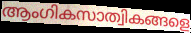
ആംഗികസാത്വികങ്ങളെ